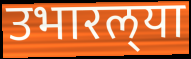
उभारल्या